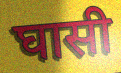
घासी